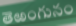
తెఱంగునం